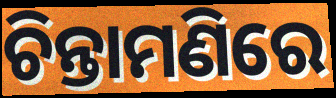
ଚିନ୍ତାମଣିରେ